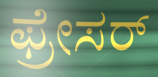
ಫ್ರೇಸರ್